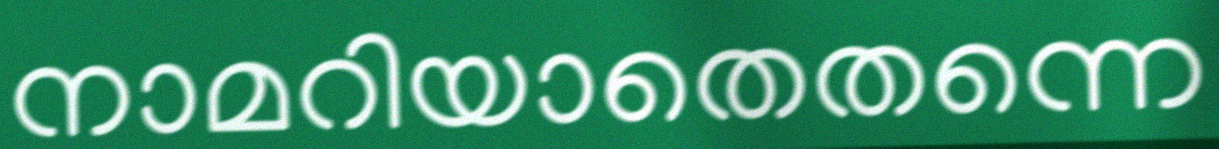
നാമറിയാതെതന്നെ